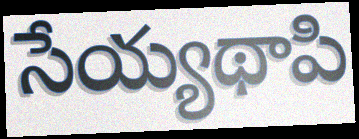
సేయ్యథాపి